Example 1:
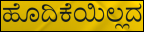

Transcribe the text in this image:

ಹೊದಿಕೆಯಿಲ್ಲದ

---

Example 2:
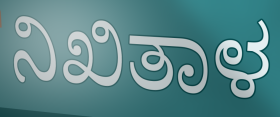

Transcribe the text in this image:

ನಿಖಿತಾಳ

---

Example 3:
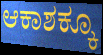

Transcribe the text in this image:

ಆಕಾಶಕ್ಕೂ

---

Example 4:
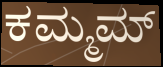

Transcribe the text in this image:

ಕಮ್ಮಮ್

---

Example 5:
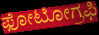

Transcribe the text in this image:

ಫೋಟೋಗ್ರಫಿ